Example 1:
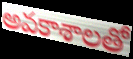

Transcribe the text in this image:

అవకాశాలతో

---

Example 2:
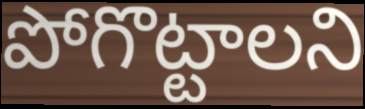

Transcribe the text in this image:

పోగొట్టాలని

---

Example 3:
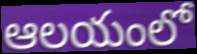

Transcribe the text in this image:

ఆలయంలో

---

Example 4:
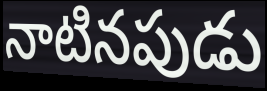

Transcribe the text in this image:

నాటినపుడు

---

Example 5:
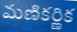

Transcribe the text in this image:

మణికర్ణిక